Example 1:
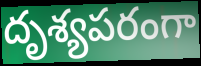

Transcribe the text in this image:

దృశ్యపరంగా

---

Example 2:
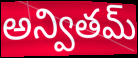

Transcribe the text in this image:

అన్వితమ్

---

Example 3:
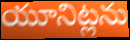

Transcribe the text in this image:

యూనిట్లను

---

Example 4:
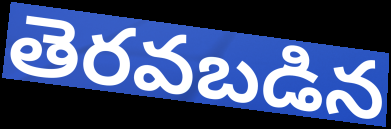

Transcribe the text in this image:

తెరవబడిన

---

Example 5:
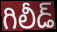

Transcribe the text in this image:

గిలీడ్